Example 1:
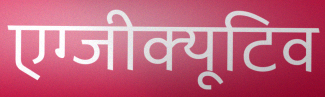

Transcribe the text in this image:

एग्जीक्यूटिव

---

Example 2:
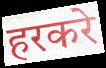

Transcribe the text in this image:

हरकरे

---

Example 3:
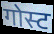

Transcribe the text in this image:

गोस्ट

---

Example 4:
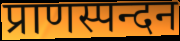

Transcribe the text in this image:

प्राणस्पन्दन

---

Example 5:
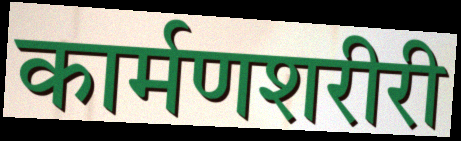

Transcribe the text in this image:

कार्मणशरीरी